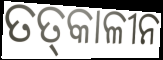
ତତ୍‌କାଳୀନ